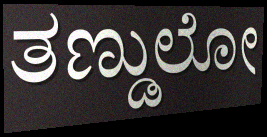
ತಣ್ಡುಲೋ